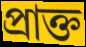
প্রাক্ত